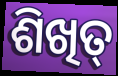
ଶିଖିତ୍